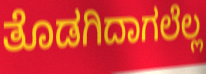
ತೊಡಗಿದಾಗಲೆಲ್ಲ